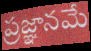
ప్రజ్ఞానమే